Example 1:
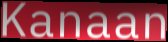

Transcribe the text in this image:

Kanaan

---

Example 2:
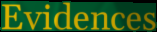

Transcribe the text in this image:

Evidences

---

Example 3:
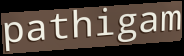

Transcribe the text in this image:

pathigam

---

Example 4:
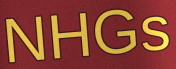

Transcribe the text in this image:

NHGs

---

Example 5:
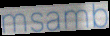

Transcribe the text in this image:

msamb